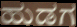
ಹುಡಗ